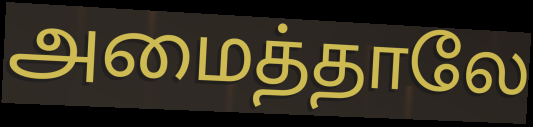
அமைத்தாலே